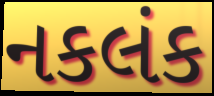
નકલંક